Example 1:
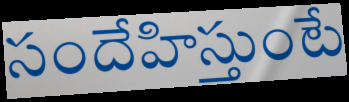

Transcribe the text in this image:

సందేహిస్తుంటే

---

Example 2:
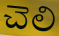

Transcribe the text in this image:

చెలి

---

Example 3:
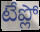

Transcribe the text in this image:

టేప్లో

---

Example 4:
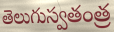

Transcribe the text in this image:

తెలుగుస్వతంత్ర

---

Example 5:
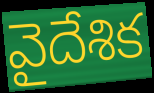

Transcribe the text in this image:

వైదేశిక